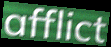
afflict